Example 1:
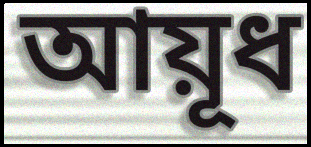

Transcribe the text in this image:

আয়ূধ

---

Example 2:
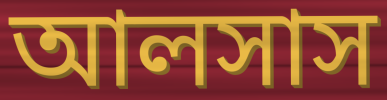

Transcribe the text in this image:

আলসাস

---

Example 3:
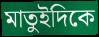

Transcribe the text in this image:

মাতুইদিকে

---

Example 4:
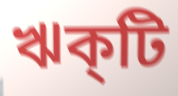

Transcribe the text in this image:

ঋক্‌টি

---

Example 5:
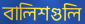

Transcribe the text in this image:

বালিশগুলি